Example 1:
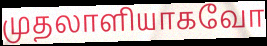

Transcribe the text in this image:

முதலாளியாகவோ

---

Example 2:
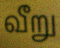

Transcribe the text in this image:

வீறு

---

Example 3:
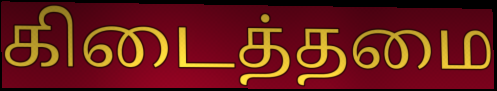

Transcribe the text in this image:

கிடைத்தமை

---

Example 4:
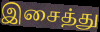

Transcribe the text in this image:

இசைத்து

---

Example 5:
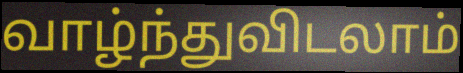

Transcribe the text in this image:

வாழ்ந்துவிடலாம்